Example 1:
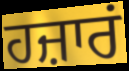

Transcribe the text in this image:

ਹਜ਼ਾਰਂ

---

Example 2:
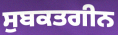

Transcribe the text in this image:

ਸੁਬਕਤਗੀਨ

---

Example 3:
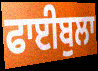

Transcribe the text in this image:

ਫਾਈਬੁਲਾ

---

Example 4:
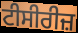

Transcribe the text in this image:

ਟੀਸੀਰੀਜ਼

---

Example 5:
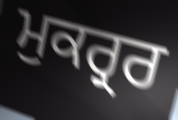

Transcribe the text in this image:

ਮੁਕਰ੍ਰਰ